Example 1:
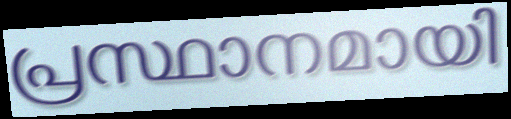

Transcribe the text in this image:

പ്രസ്ഥാനമായി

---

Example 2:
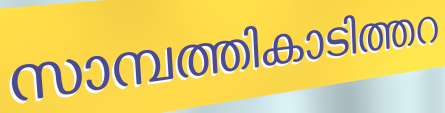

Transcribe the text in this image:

സാമ്പത്തികാടിത്തറ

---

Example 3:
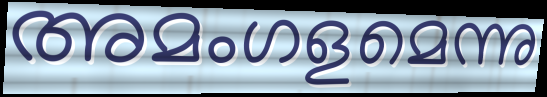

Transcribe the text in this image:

അമംഗളമെന്നു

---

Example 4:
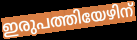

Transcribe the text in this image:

ഇരുപത്തിയേഴിന്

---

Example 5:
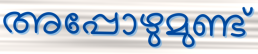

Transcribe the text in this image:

അപ്പോഴുമുണ്ട്